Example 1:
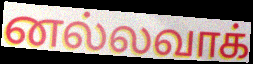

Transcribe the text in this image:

னல்லவாக்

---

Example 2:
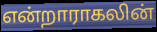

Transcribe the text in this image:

என்றாராகலின்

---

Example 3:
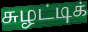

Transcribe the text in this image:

சுழட்டிக்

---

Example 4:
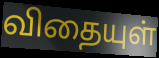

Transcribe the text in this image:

விதையுள்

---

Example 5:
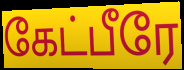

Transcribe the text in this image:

கேட்பீரே